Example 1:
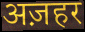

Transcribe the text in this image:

अज़हर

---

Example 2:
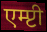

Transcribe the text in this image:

एम्प्टी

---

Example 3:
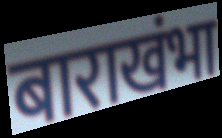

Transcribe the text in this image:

बाराखंभा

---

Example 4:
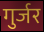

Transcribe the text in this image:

गुर्जर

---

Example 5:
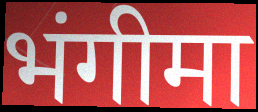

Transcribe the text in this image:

भंगीमा